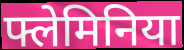
फ्लेमिनिया